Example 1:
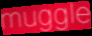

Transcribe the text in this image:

muggle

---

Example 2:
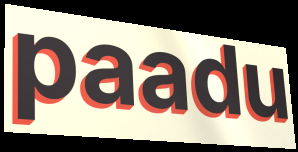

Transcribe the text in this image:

paadu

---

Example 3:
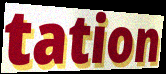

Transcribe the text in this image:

tation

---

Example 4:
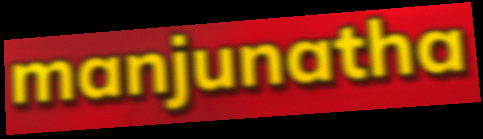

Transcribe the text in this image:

manjunatha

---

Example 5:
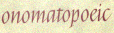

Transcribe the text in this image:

onomatopoeic